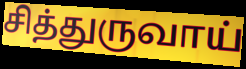
சித்துருவாய்